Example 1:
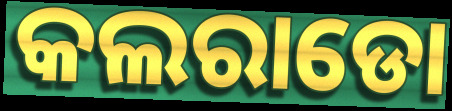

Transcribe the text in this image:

କଲରାଡୋ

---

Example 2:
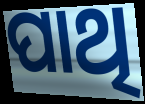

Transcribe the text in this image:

ପାଥି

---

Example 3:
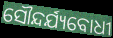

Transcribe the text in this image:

ସୌନ୍ଦର୍ଯ୍ୟବୋଧୀ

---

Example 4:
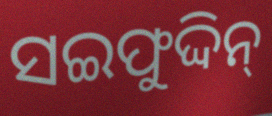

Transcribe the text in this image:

ସଇଫୁଦ୍ଦିନ୍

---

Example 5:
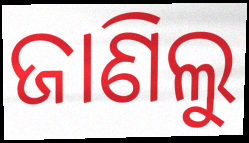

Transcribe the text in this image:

ଜାଣିଲୁ